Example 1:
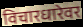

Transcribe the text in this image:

विचारधारेवर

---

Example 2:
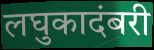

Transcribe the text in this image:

लघुकादंबरी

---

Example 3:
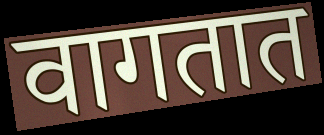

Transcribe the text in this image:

वागतात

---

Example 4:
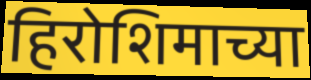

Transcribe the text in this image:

हिरोशिमाच्या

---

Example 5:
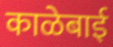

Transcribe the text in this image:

काळेबाई